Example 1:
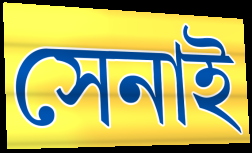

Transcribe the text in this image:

সেনাই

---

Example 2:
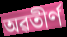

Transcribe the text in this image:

অৱতীৰ্ণ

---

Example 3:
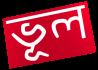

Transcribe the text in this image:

ভূল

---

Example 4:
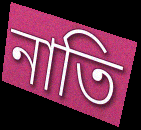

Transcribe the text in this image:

নাতি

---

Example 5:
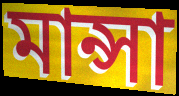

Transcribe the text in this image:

মান্সা